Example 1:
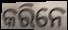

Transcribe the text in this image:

କରିନେ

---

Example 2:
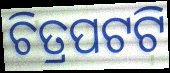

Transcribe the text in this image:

ଚିତ୍ରପଟଟି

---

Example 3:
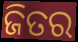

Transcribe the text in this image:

ଜିତର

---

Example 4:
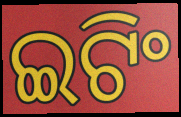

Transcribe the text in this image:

ଇଟିଂ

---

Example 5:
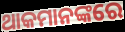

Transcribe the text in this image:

ଥାକମାନଙ୍କରେ